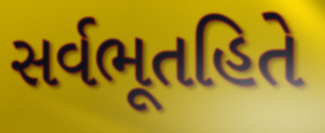
સર્વભૂતહિતે